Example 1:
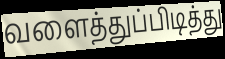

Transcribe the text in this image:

வளைத்துப்பிடித்து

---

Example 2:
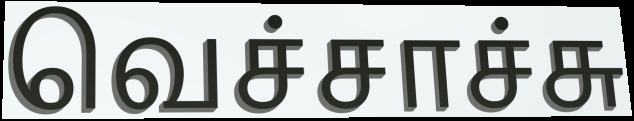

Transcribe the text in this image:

வெச்சாச்சு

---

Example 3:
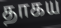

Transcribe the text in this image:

தாகய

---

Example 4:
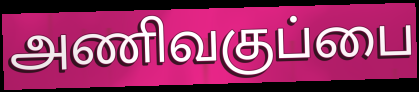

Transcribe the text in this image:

அணிவகுப்பை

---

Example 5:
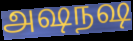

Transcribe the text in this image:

அஷநஷ